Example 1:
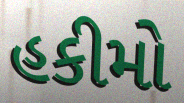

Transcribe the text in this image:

હકીમો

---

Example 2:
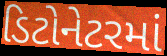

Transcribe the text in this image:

ડિટોનેટરમાં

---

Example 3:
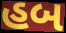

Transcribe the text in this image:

હબ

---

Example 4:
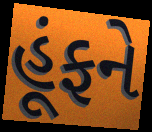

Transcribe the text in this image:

હૂંફને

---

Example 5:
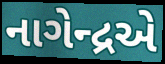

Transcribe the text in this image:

નાગેન્દ્રએ